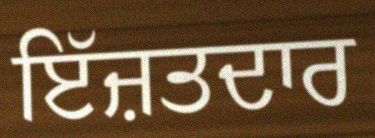
ਇੱਜ਼ਤਦਾਰ